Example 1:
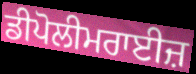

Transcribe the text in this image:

ਡੀਪੋਲੀਮਰਾਈਜ਼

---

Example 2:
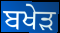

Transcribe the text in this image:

ਬਖੇੜ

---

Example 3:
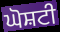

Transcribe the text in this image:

ਘੋਸ਼ਟੀ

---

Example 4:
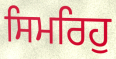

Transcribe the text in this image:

ਸਿਮਰਿਹੁ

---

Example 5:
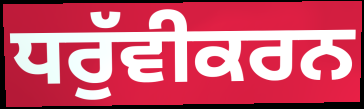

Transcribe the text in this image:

ਧਰੁੱਵੀਕਰਨ